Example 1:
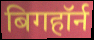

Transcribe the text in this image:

बिगहॉर्न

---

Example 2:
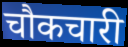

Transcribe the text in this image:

चौकचारी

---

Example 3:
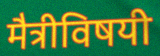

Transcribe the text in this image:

मैत्रीविषयी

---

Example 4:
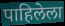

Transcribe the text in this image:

पाहिलेला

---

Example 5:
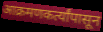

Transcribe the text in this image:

आक्रमणकर्त्यांपासून